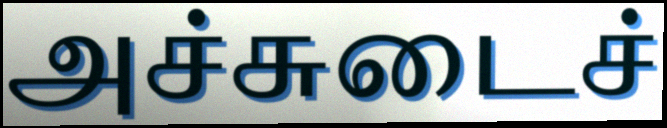
அச்சுடைச்